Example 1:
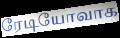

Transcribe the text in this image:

ரேடியோவாக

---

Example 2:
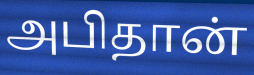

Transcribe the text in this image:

அபிதான்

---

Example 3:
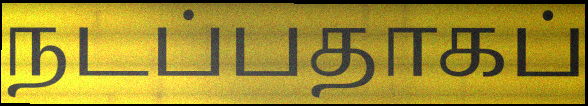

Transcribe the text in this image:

நடப்பதாகப்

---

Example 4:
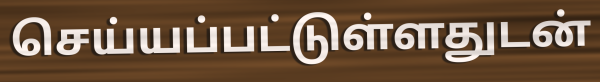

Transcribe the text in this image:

செய்யப்பட்டுள்ளதுடன்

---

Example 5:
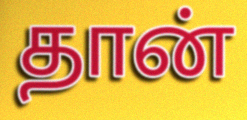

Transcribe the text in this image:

தான்